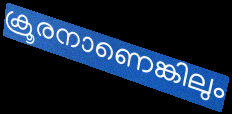
ക്രൂരനാണെങ്കിലും